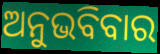
ଅନୁଭବିବାର